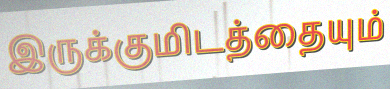
இருக்குமிடத்தையும்